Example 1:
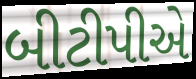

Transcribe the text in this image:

બીટીપીએ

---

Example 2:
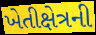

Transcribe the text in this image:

ખેતીક્ષેત્રની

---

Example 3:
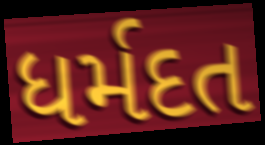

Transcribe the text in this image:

ધર્મદત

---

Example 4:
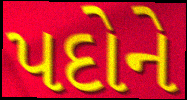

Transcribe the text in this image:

પદોને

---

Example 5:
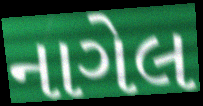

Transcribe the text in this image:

નાગેલ